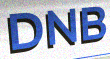
DNB